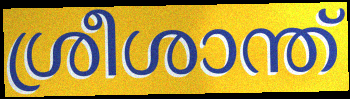
ശ്രീശാന്ത്